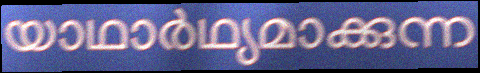
യാഥാർഥ്യമാക്കുന്ന